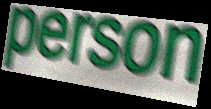
person